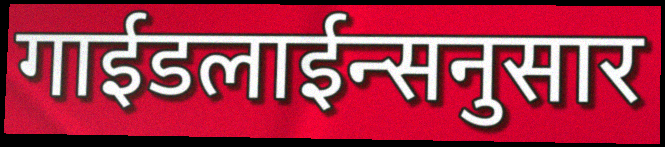
गाईडलाईन्सनुसार